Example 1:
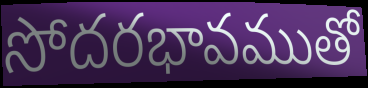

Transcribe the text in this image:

సోదరభావముతో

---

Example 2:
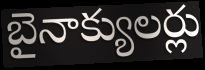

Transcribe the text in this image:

బైనాక్యులర్లు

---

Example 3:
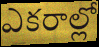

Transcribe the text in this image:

ఎకరాల్లో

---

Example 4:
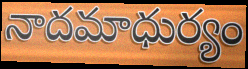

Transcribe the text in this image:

నాదమాధుర్యం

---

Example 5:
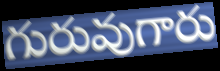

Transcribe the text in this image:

గురువుగారు